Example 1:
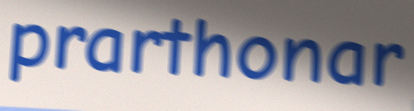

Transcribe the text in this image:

prarthonar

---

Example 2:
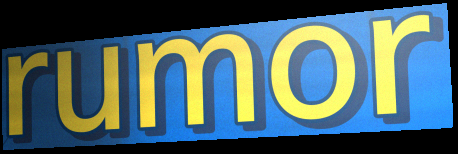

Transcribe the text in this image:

rumor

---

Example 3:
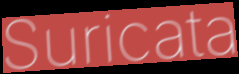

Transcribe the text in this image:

Suricata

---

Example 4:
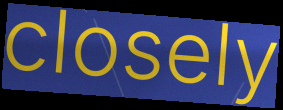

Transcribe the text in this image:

closely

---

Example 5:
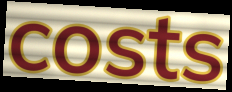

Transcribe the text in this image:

costs